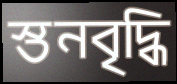
স্তনবৃদ্ধি